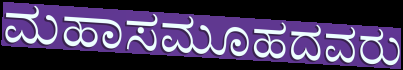
ಮಹಾಸಮೂಹದವರು